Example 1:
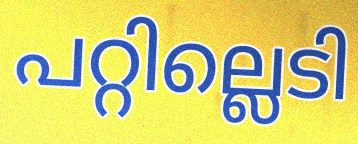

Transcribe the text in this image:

പറ്റില്ലെടി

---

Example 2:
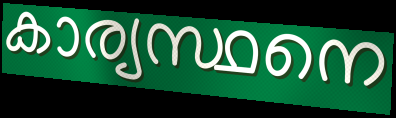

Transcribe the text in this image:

കാര്യസ്ഥനെ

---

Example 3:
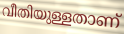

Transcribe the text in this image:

വീതിയുള്ളതാണ്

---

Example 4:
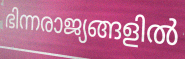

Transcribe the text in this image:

ഭിന്നരാജ്യങ്ങളിൽ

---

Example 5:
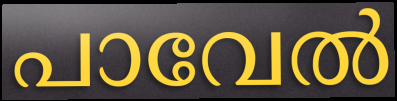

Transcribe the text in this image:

പാവേൽ